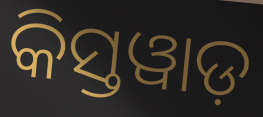
କିସ୍ତୱାଡ଼